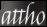
attho